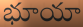
భూయా